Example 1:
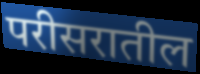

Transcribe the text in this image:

परीसरातील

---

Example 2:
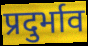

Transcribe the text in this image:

प्रदुर्भाव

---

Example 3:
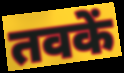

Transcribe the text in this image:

तवकें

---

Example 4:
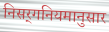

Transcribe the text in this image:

निसर्गनियमानुसार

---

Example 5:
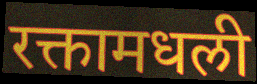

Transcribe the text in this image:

रक्तामधली